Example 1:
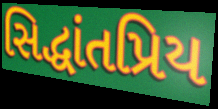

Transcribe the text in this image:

સિદ્ધાંતપ્રિય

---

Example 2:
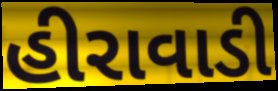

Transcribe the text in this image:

હીરાવાડી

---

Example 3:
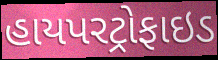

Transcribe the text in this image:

હાયપરટ્રોફાઇડ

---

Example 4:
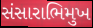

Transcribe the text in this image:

સંસારાભિમુખ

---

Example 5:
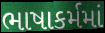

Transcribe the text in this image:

ભાષાકર્મમાં